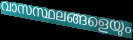
വാസസ്ഥലങ്ങളെയും